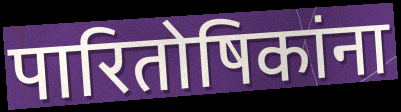
पारितोषिकांना